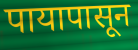
पायापासून